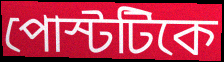
পোস্টটিকে